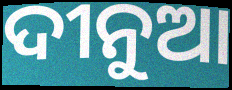
ଦୀନୁଆ